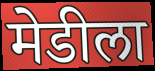
मेडीला